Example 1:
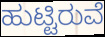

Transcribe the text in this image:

ಹುಟ್ಟಿರುವೆ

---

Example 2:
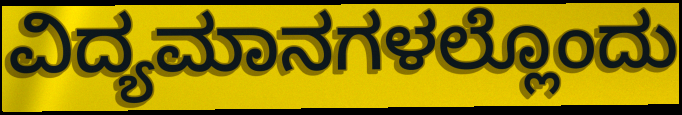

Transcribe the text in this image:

ವಿದ್ಯಮಾನಗಳಲ್ಲೊಂದು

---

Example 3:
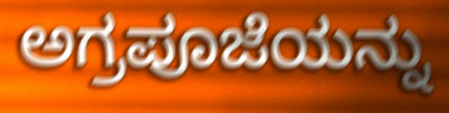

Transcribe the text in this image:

ಅಗ್ರಪೂಜೆಯನ್ನು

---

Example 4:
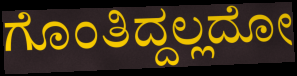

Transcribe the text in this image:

ಗೊಂತಿದ್ದಲ್ಲದೋ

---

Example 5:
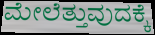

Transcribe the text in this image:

ಮೇಲೆತ್ತುವುದಕ್ಕೆ